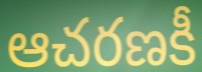
ఆచరణకీ